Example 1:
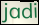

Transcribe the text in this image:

jadi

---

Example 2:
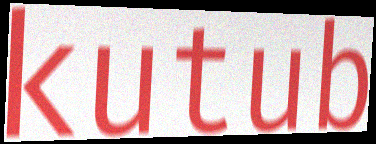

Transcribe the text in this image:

kutub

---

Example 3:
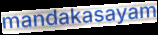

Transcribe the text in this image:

mandakasayam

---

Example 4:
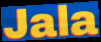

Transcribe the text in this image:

Jala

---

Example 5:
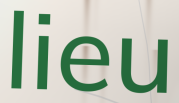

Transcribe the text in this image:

lieu